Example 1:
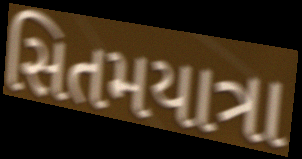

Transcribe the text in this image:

સિતમયાત્રા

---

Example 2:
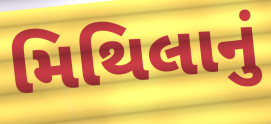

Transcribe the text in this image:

મિથિલાનું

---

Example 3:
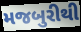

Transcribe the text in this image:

મજબુરીથી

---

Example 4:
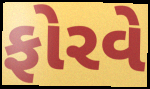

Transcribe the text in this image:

ફોરવે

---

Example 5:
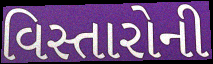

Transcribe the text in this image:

વિસ્તારોની